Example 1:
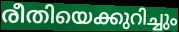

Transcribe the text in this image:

രീതിയെക്കുറിച്ചും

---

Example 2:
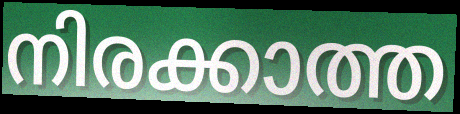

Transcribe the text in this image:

നിരക്കാത്ത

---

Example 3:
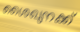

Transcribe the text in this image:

ശൈഖുനക്ക്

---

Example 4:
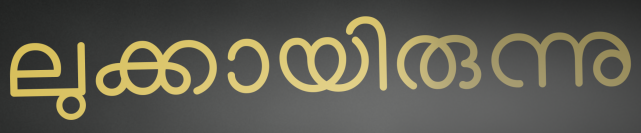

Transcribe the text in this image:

ലുക്കായിരുന്നു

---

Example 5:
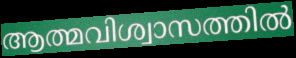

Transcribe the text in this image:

ആത്മവിശ്വാസത്തിൽ